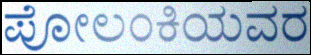
ಪೋಲಂಕಿಯವರ